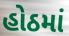
હોઠમાં